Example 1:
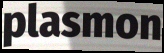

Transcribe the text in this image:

plasmon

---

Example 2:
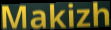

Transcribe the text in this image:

Makizh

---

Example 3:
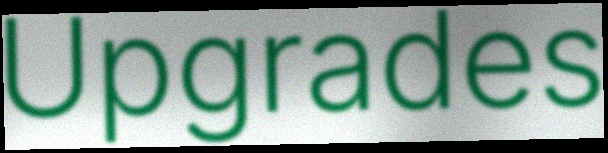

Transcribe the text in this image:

Upgrades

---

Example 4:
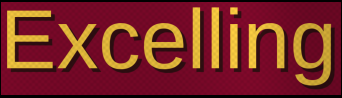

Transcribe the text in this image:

Excelling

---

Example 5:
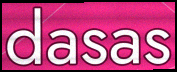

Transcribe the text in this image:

dasas